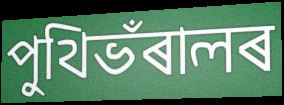
পুথিভঁৰালৰ